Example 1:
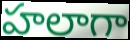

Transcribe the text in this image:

హలాగా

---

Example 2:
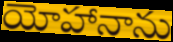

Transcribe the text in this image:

యోహానాను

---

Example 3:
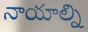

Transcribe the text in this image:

నాయాల్ని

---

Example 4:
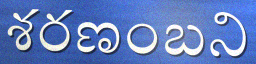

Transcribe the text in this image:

శరణంబని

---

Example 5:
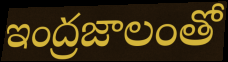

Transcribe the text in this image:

ఇంద్రజాలంతో